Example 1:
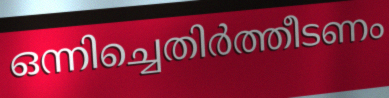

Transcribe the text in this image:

ഒന്നിച്ചെതിർത്തീടണം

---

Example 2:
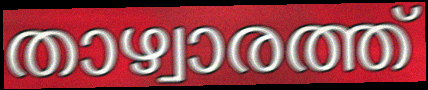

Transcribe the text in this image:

താഴ്വാരത്ത്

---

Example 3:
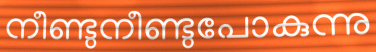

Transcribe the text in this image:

നീണ്ടുനീണ്ടുപോകുന്നു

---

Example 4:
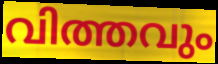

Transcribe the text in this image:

വിത്തവും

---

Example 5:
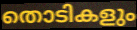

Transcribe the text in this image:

തൊടികളും